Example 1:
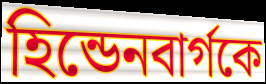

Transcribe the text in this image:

হিন্ডেনবার্গকে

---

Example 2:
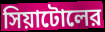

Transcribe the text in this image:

সিয়াটোলের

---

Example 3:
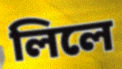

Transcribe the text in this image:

লিলে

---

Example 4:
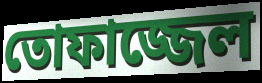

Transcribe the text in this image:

তোফাজ্জেল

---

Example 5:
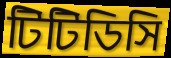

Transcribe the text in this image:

টিটিডিসি